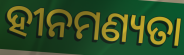
ହୀନମଣ୍ୟତା